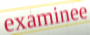
examinee